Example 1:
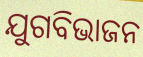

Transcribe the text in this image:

ଯୁଗବିଭାଜନ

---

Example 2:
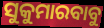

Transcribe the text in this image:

ସୁକୁମାରବାବୁ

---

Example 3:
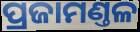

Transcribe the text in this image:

ପ୍ରଜାମଣ୍ତଳ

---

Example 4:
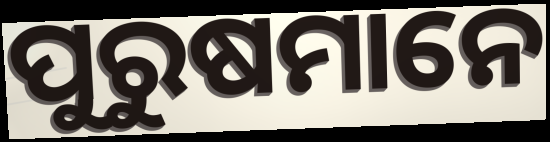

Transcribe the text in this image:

ପୁରୁଷମାନେ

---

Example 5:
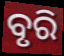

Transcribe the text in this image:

ବୃରି